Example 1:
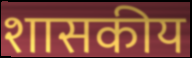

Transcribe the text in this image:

शासकीय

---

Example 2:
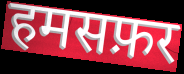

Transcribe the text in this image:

हमसफ़र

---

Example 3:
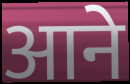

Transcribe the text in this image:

आने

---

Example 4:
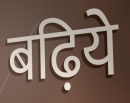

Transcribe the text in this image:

बढ़िये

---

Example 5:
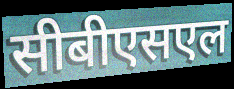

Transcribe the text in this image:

सीबीएसएल